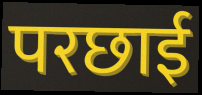
परछाई